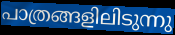
പാത്രങ്ങളിലിടുന്നു